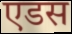
एडस